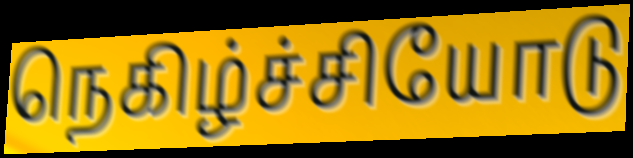
நெகிழ்ச்சியோடு